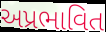
અપ્રભાવિત